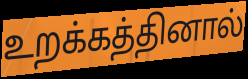
உறக்கத்தினால்